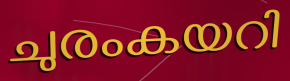
ചുരംകയറി